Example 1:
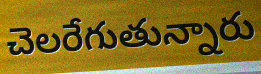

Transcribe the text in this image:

చెలరేగుతున్నారు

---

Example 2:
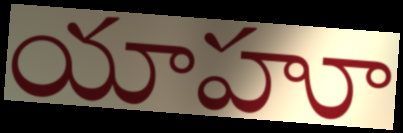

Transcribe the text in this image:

యాహూ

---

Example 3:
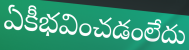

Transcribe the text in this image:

ఏకీభవించడంలేదు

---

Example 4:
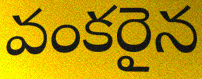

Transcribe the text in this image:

వంకరైన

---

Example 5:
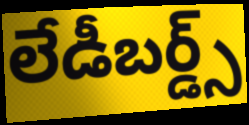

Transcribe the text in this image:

లేడీబర్డ్స్